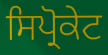
ਸਿਪ੍ਰੋਕੇਟ